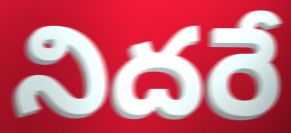
నిదరే